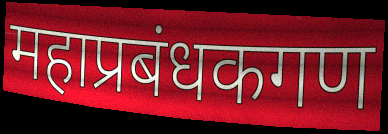
महाप्रबंधकगण